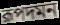
রূপদমন